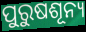
ପୁରୁଷଶୂନ୍ୟ